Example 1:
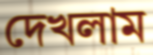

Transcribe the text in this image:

দেখলাম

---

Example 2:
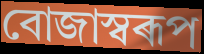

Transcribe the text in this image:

বোজাস্বৰূপ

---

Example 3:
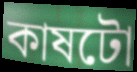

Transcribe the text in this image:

কাষটো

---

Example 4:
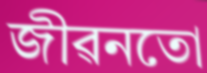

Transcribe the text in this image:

জীৱনতো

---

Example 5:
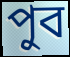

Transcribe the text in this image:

পুব